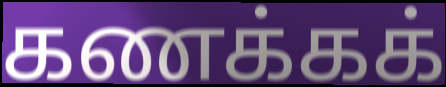
கணக்கக்